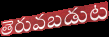
తెరువబడుట